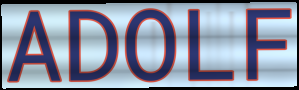
ADOLF